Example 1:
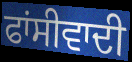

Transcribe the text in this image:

ਫਾਂਸੀਵਾਦੀ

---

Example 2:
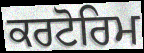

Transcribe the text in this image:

ਕਰਟੋਰਿਮ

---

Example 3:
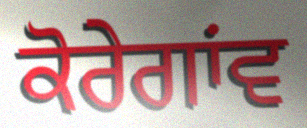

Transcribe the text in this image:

ਕੋਰੇਗਾਂਵ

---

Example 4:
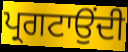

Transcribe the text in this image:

ਪ੍ਰਗਟਾਉਂਦੀ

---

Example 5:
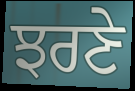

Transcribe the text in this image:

ਝਰਣੇ